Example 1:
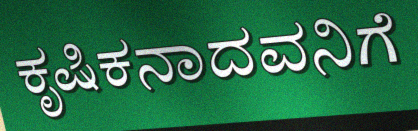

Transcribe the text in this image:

ಕೃಷಿಕನಾದವನಿಗೆ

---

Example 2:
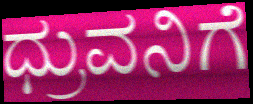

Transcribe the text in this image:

ಧ್ರುವನಿಗೆ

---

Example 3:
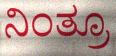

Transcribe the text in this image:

ನಿಂತ್ರೂ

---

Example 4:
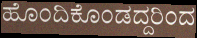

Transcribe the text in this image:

ಹೊಂದಿಕೊಂಡದ್ದರಿಂದ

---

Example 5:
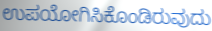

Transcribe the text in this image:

ಉಪಯೋಗಿಸಿಕೊಂಡಿರುವುದು